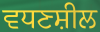
ਵਧਣਸ਼ੀਲ